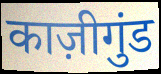
काज़ीगुंड